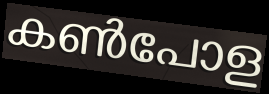
കൺപോള